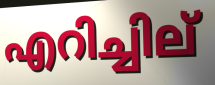
എറിച്ചില്